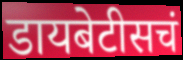
डायबेटीसचं